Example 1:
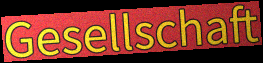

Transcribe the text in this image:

Gesellschaft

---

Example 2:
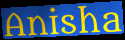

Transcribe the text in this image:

Anisha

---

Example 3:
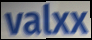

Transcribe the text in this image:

valxx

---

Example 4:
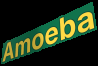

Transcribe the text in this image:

Amoeba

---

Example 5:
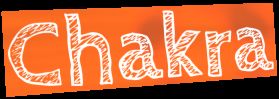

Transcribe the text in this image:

Chakra